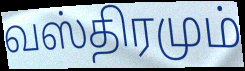
வஸ்திரமும்